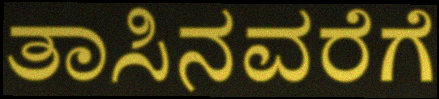
ತಾಸಿನವರೆಗೆ